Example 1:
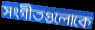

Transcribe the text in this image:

সংগীতগুলোকে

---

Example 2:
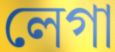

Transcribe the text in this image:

লেগা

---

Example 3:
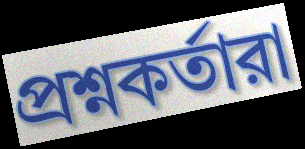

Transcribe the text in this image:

প্রশ্নকর্তারা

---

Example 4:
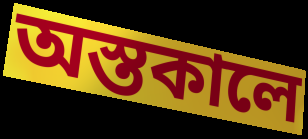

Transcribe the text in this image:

অস্তকালে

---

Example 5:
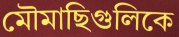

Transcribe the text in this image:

মৌমাছিগুলিকে